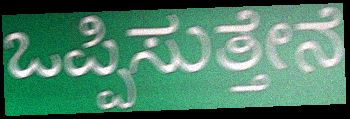
ಒಪ್ಪಿಸುತ್ತೇನೆ